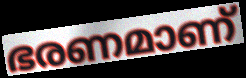
ഭരണമാണ്